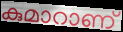
കുമാറാണ്